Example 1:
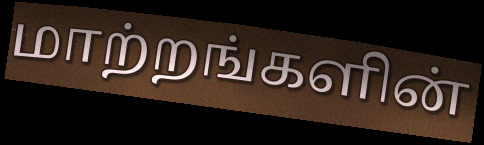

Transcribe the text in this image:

மாற்றங்களின்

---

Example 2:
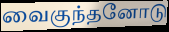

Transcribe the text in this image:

வைகுந்தனோடு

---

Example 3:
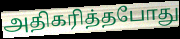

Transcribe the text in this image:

அதிகரித்தபோது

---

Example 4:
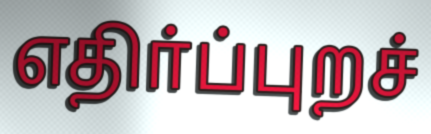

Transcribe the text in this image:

எதிர்ப்புறச்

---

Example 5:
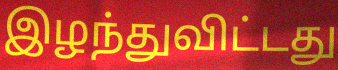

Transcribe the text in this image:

இழந்துவிட்டது